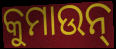
କୁମାଉନ୍